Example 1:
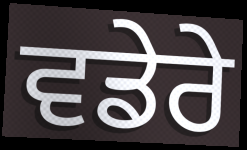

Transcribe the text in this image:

ਵਡੇਰੇ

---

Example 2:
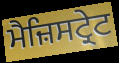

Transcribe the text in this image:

ਮੈਜ਼ਿਸਟ੍ਰੇਟ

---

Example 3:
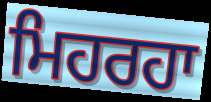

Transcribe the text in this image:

ਮਿਹਰਹਾ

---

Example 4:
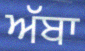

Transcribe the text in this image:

ਅੱਬਾ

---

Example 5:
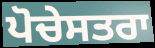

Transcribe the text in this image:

ਪੋਚੇਸਤਰਾ